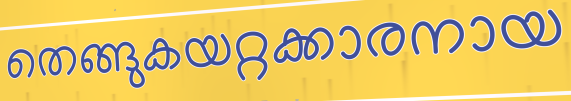
തെങ്ങുകയറ്റക്കാരനായ